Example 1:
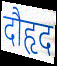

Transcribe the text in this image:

दौहृद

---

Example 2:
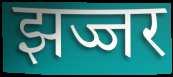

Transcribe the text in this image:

झज्जर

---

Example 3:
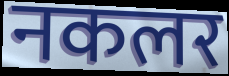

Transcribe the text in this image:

नकलर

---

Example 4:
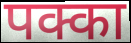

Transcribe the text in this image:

पक्का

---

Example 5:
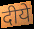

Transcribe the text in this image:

दीये